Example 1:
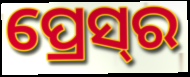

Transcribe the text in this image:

ପ୍ରେସ୍‌ର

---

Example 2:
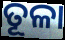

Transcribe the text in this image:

ତୂଳା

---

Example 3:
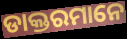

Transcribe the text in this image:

ଡାକ୍ତରମାନେ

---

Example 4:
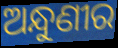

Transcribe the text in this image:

ଅନ୍ଧୁଣୀର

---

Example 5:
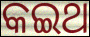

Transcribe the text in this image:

କଇଥ